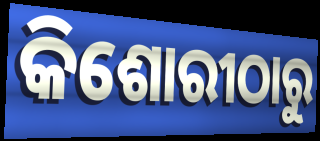
କିଶୋରୀଠାରୁ